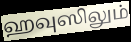
ஹவுஸிலும்